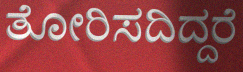
ತೋರಿಸದಿದ್ದರೆ